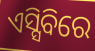
ଏସ୍ସିବିରେ